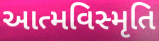
આત્મવિસ્મૃતિ